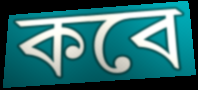
কবে